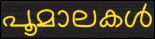
പൂമാലകൾ